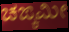
ಚಙ್ಕಮೀ